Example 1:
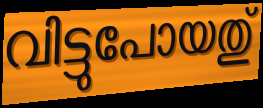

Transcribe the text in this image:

വിട്ടുപോയതു്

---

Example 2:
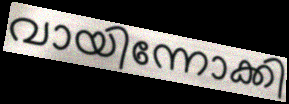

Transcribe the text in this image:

വായിന്നോക്കി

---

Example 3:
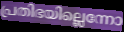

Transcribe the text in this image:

പ്രതിഭയില്ലെന്നോ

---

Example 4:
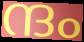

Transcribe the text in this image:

ന്ദം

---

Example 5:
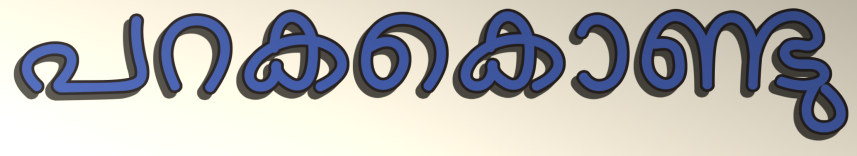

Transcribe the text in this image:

പറകകൊണ്ടു